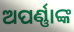
ଅପର୍ଣ୍ଣାଙ୍କ